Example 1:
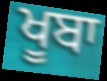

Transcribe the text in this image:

ਖੂਬਾ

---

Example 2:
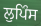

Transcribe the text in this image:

ਲੁਪਿੰਸ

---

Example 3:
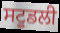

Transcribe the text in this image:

ਸਟੂਡਲੀ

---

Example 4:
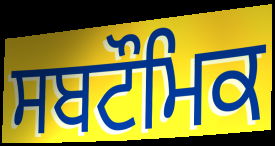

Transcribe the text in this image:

ਸਬਟੌਮਿਕ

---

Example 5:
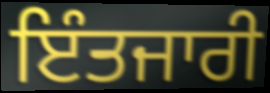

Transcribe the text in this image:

ਇੰਤਜਾਰੀ